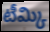
టీమ్కి